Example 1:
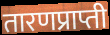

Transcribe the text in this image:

तारणप्राप्ती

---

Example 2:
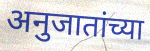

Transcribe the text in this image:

अनुजातांच्या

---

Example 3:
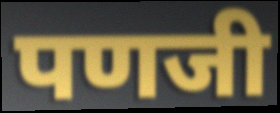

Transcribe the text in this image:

पणजी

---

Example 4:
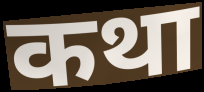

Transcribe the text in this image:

कथा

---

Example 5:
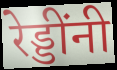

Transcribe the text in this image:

रेड्डींनी